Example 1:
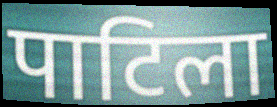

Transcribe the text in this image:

पाटिला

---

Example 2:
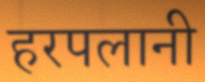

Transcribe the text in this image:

हरपलानी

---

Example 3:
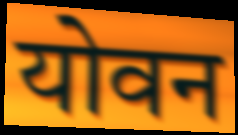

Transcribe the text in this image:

योवन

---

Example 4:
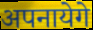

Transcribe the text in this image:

अपनायेगे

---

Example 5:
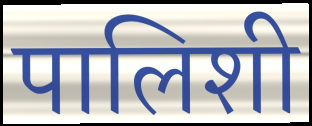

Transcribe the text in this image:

पालिशी